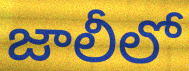
జాలీలో